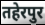
तहेरपुर